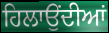
ਹਿਲਾਉਂਦੀਆਂ